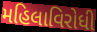
મહિલાવિરોધી